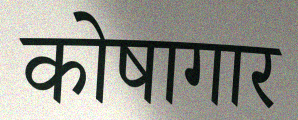
कोषागार